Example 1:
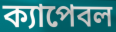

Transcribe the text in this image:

ক্যাপেবল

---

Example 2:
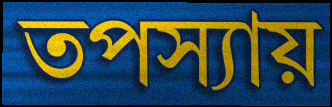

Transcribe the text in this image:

তপস্যায়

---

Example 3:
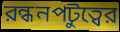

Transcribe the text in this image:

রন্ধনপটুত্বের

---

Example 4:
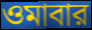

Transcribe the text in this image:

ওমাবার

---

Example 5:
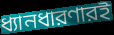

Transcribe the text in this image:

ধ্যানধারণারই